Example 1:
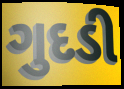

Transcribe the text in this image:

ગુદડી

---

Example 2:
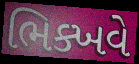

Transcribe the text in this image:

ભિક્ખવે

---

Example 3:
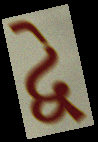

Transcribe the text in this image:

દ્વે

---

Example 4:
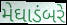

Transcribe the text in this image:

મેઘાડંબરે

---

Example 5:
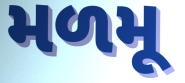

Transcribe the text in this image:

મળમૂ